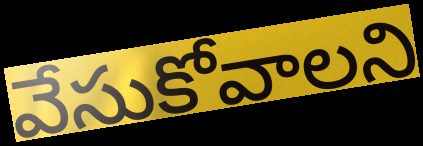
వేసుకోవాలని